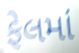
ફેલમાં